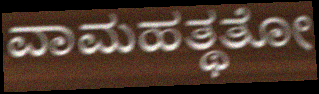
ವಾಮಹತ್ಥತೋ